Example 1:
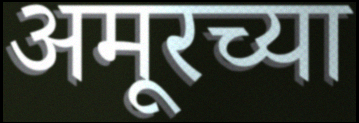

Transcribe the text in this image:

अमूरच्या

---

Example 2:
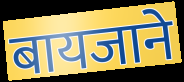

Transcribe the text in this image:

बायजाने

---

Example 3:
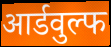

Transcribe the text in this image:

आर्डवुल्फ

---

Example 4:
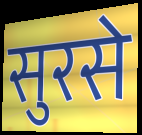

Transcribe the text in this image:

सुरसे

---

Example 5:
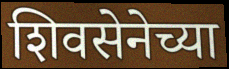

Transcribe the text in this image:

शिवसेनेच्या